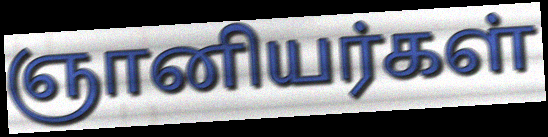
ஞானியர்கள்